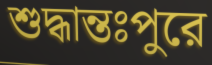
শুদ্ধান্তঃপুরে